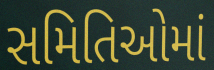
સમિતિઓમાં